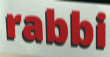
rabbi